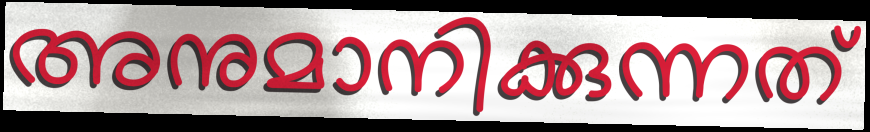
അനുമാനിക്കുന്നത്